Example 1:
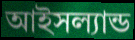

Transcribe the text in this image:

আইসল্যান্ড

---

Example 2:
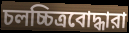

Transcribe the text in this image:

চলচ্চিত্রবোদ্ধারা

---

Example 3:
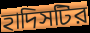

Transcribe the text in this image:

হাদিসটির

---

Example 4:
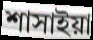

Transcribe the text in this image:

শাসাইয়া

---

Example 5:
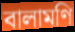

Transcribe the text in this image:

বালামণি